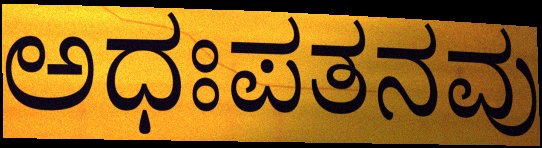
ಅಧಃಪತನವು